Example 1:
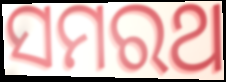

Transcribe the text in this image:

ସମରଥ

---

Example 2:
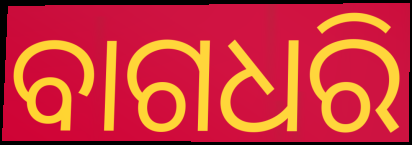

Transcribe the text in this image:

ବାଗଧରି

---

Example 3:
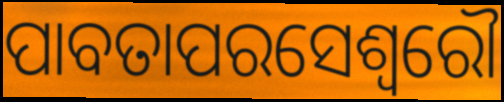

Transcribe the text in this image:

ପାବତାପରସେଶ୍ୱରୌ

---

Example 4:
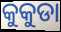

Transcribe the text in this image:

କୁକୁଡା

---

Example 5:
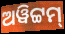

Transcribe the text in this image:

ଅୱିଟ୍ଟମ୍